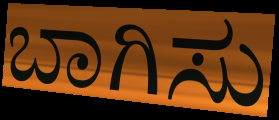
ಬಾಗಿಸು